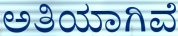
ಅತಿಯಾಗಿವೆ